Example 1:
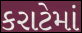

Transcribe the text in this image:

કરાટેમાં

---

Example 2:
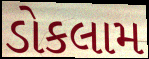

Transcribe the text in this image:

ડોકલામ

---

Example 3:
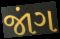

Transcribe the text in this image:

જાંગ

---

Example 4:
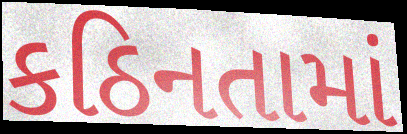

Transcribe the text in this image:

કઠિનતામાં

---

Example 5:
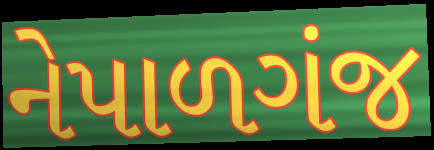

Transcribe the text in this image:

નેપાળગંજ